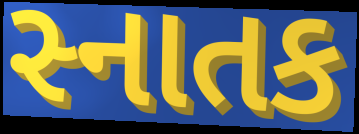
સ્નાતક